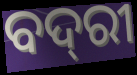
ବଦ୍‌ରୀ